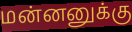
மன்னனுக்கு